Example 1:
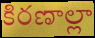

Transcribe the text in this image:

కిరణాల్లా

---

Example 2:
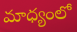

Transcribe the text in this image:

మాధ్యంలో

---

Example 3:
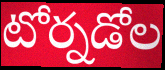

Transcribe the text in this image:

టోర్నడోల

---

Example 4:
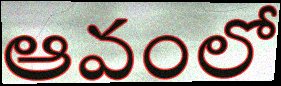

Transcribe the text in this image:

ఆవంలో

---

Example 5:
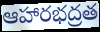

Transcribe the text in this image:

ఆహారభద్రత